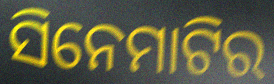
ସିନେମାଟିର